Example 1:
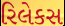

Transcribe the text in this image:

રિલેકસ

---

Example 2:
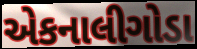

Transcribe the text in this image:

એકનાલીગોડા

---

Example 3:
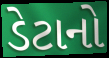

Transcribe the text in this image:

ડેટાનો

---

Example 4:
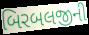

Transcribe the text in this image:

બિરબલજીની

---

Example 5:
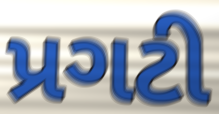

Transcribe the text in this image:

પ્રગટી